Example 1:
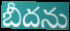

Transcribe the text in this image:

బీదను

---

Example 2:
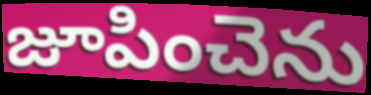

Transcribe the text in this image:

జూపించెను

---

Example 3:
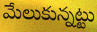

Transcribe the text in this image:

మేలుకున్నట్టు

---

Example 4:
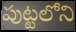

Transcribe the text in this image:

పుట్టలోని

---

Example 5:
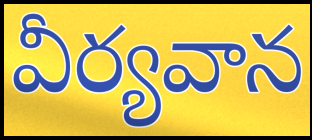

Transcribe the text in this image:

వీర్యవాన